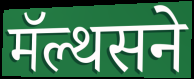
मॅल्थसने